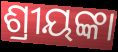
ଶ୍ରୀୟଙ୍କା